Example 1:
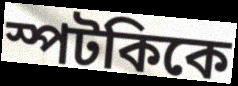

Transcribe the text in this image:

স্পটকিকে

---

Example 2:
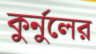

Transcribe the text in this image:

কুর্নুলের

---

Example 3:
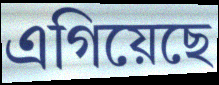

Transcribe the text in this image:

এগিয়েছে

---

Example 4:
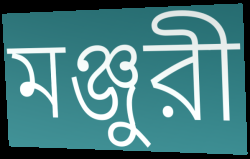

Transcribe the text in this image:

মঞ্জুরী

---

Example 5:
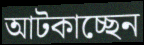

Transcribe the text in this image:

আটকাচ্ছেন